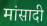
मांसादी